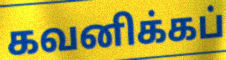
கவனிக்கப்